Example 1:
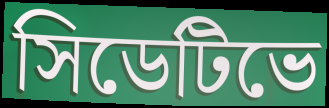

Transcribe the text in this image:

সিডেটিভে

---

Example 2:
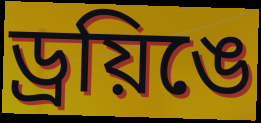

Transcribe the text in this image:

ড্রয়িঙে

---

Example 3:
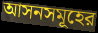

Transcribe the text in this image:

আসনসমূহের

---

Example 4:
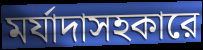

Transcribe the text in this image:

মর্যাদাসহকারে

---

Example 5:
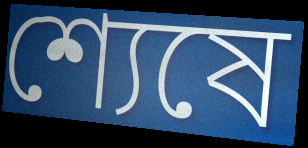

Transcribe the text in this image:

শ্যেষে